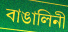
বাঙালিনী